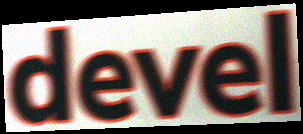
devel